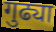
गुढ्या